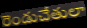
రెండుచేతులా